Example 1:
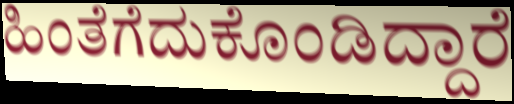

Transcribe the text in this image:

ಹಿಂತೆಗೆದುಕೊಂಡಿದ್ದಾರೆ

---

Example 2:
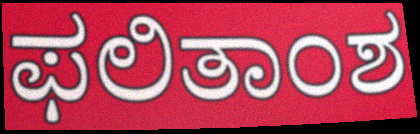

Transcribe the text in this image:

ಫಲಿತಾಂಶ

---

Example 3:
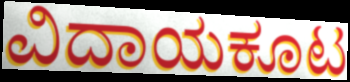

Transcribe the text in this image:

ವಿದಾಯಕೂಟ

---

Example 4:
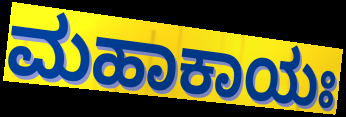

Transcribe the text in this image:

ಮಹಾಕಾಯಃ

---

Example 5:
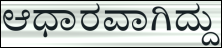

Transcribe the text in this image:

ಆಧಾರವಾಗಿದ್ದು